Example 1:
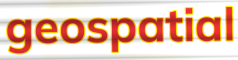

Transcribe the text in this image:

geospatial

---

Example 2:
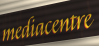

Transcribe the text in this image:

mediacentre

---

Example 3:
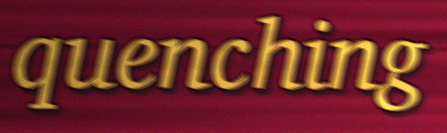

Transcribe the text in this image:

quenching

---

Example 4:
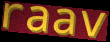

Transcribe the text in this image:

raav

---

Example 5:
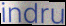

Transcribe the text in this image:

indru